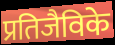
प्रतिजैविके